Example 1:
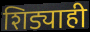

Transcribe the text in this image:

शिड्याही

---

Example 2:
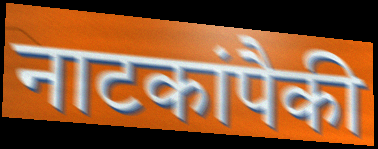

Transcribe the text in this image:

नाटकांपैकी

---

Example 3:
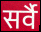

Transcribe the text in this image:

सर्वै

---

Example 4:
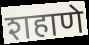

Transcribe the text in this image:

शहाणे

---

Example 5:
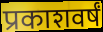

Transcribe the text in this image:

प्रकाशवर्षं